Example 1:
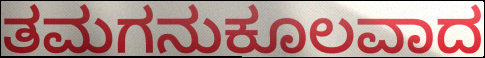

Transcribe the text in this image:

ತಮಗನುಕೂಲವಾದ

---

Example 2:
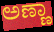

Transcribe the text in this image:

ಅಣ್ಣಾ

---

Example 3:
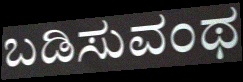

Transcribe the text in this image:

ಬಡಿಸುವಂಥ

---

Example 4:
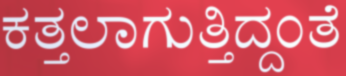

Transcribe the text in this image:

ಕತ್ತಲಾಗುತ್ತಿದ್ದಂತೆ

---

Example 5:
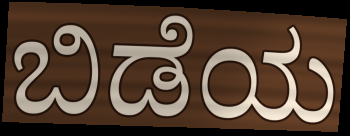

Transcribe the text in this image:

ಬಿಡೆಯ